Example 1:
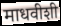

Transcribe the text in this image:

माधवीशी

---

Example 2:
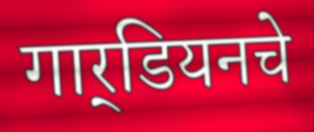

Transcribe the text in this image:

गार्डियनचे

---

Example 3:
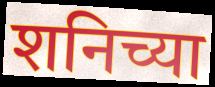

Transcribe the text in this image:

शनिच्या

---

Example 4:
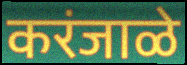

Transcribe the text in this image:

करंजाळे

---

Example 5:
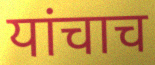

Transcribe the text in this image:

यांचाच